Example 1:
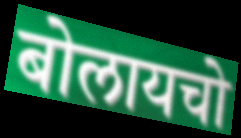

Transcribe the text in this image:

बोलायचो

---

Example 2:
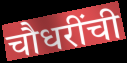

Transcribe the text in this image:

चौधरींची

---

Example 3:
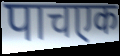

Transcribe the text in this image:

पाचएक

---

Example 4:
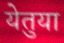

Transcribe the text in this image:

येतुया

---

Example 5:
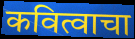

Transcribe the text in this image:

कवित्वाचा